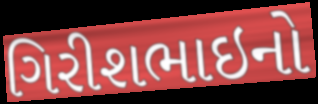
ગિરીશભાઇનો